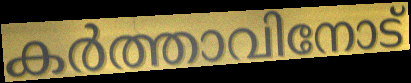
കർത്താവിനോട്